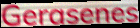
Gerasenes